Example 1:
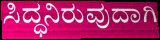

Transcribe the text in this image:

ಸಿದ್ಧನಿರುವುದಾಗಿ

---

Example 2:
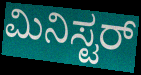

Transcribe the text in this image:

ಮಿನಿಸ್ಟರ್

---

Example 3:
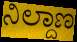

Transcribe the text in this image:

ನಿಲ್ದಾಣ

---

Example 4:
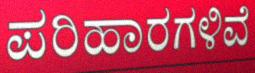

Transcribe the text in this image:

ಪರಿಹಾರಗಳಿವೆ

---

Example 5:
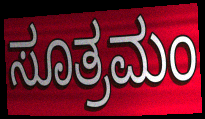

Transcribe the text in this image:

ಸೂತ್ರಮಂ